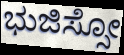
ಭುಜಿಸ್ಸೋ